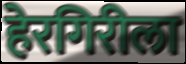
हेरगिरीला